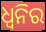
ଧ୍ୱନିର